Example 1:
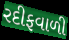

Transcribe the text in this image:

રદીફવાળી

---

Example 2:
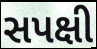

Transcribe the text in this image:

સપક્ષી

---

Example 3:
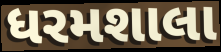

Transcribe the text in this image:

ધરમશાલા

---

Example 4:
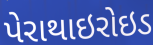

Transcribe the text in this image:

પેરાથાઇરોઇડ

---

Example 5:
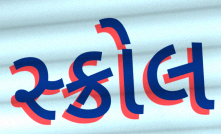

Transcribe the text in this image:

સ્ક્રોલ